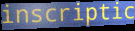
inscriptic